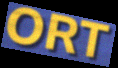
ORT